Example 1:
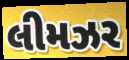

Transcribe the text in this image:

લીમઝર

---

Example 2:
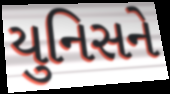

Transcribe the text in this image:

યુનિસને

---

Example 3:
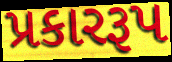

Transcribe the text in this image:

પ્રકારરૂપ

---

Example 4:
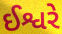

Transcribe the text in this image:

ઈશ્વરે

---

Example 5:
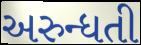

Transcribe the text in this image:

અરુન્ધતી